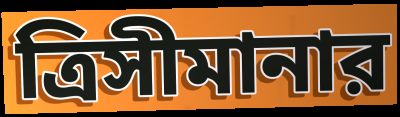
ত্রিসীমানার